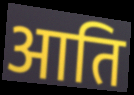
आति